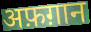
अफ़ग़ान